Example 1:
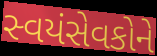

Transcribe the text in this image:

સ્વયંસેવકોને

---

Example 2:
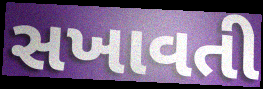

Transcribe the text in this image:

સખાવતી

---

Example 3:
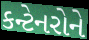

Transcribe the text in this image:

કન્ટેનરોને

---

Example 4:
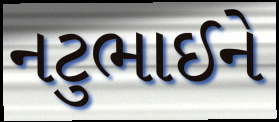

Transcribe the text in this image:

નટુભાઈને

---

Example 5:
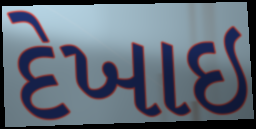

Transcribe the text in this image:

દેખાઇ